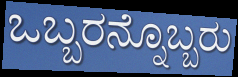
ಒಬ್ಬರನ್ನೊಬ್ಬರು